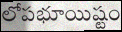
లోపభూయిష్టం